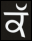
ਕੱ